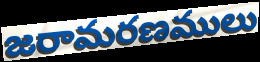
జరామరణములు